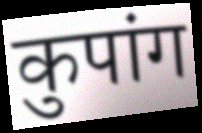
कुपांग